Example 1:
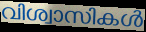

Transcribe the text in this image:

വിശ്വാസികൾ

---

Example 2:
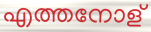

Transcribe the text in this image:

എത്തനോള്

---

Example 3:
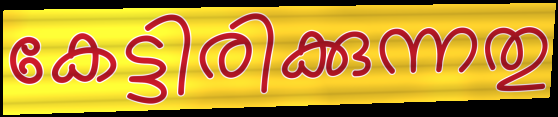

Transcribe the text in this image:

കേട്ടിരിക്കുന്നതു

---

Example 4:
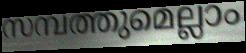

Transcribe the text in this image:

സമ്പത്തുമെല്ലാം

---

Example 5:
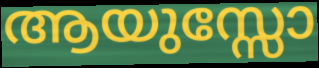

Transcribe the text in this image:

ആയുസ്സോ